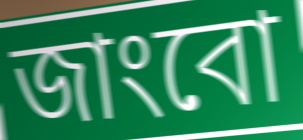
জাংবো